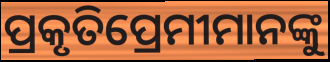
ପ୍ରକୃତିପ୍ରେମୀମାନଙ୍କୁ